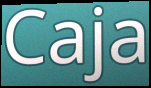
Caja